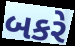
બકરે